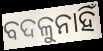
ବଦଳୁନାହିଁ